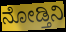
ನೋಡ್ತಿನಿ